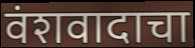
वंशवादाचा